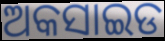
ଅକସାଇଡ